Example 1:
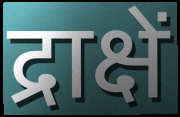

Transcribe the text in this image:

द्राक्षें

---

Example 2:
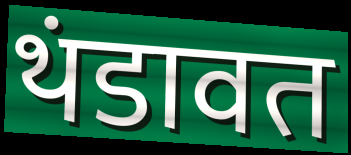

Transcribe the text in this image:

थंडावत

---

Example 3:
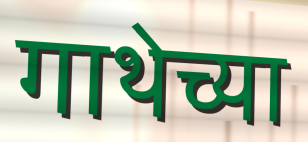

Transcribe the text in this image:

गाथेच्या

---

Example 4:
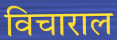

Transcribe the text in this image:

विचाराल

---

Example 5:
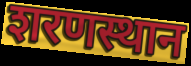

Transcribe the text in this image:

शरणस्थान